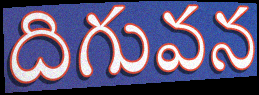
దిగువన